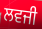
ਲਵਜੀ